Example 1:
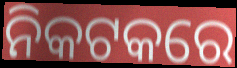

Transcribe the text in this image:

ନିକଟକରେ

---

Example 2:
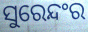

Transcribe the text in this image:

ସୁରେନ୍ଦଂର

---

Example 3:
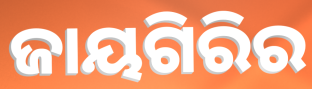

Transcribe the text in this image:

ଜାୟଗିରିର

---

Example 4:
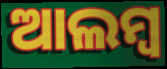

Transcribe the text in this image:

ଆଲମ୍ବ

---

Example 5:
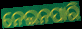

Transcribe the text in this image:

ନେଇନପାରି